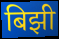
बिझी